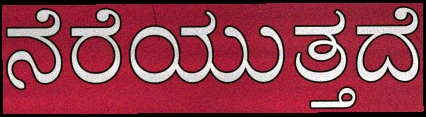
ನೆರೆಯುತ್ತದೆ